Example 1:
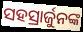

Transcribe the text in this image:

ସହସ୍ରାର୍ଜୁନଙ୍କ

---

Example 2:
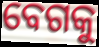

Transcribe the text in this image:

ବେଗକୁ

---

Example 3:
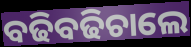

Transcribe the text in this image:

ବଢିବଢିଚାଲେ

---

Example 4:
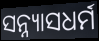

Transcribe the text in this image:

ସନ୍ନ୍ୟାସଧର୍ମ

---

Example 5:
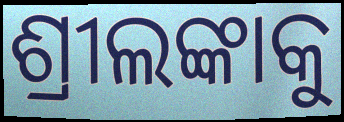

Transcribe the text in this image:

ଶ୍ରୀଲଙ୍କାକୁ